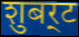
शुबर्ट